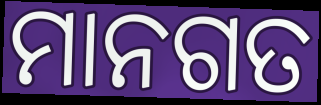
ମାନଗତ